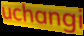
uchangi